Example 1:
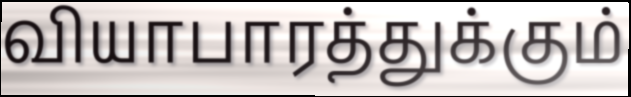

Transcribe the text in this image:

வியாபாரத்துக்கும்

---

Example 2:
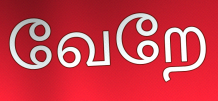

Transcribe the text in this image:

வேறே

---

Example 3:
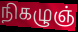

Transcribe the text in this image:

நிகழுஞ்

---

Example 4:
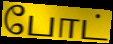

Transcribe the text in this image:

போட்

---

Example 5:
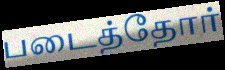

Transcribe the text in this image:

படைத்தோர்